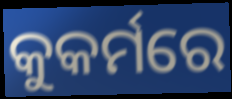
କୁକର୍ମରେ